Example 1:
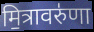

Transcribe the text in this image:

मि॒त्रावरु॑णा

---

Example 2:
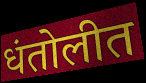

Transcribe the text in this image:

धंतोलीत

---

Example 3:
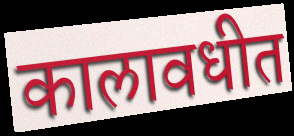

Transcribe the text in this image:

कालावधीत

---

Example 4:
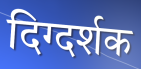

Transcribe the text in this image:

दिग्दर्शक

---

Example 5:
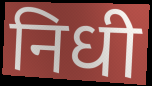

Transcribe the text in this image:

निधी